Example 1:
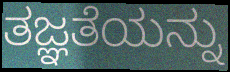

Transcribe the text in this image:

ತಜ್ಞತೆಯನ್ನು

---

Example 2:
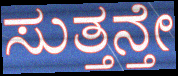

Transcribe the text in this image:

ಸುತ್ತನ್ತೇ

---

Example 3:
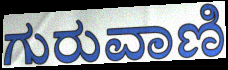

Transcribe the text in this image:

ಗುರುವಾಣಿ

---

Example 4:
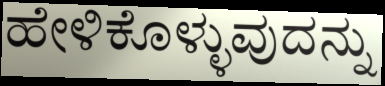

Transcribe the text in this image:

ಹೇಳಿಕೊಳ್ಳುವುದನ್ನು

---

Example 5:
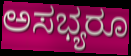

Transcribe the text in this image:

ಅಸಭ್ಯರೂ